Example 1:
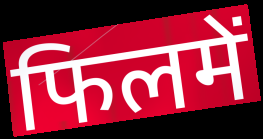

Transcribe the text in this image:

फिलमें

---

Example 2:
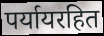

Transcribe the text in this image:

पर्यायरहित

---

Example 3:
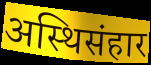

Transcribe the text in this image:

अस्थिसंहार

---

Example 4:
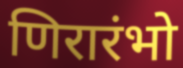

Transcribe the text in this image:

णिरारंभो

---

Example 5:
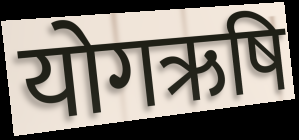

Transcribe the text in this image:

योगऋषि